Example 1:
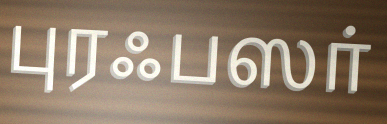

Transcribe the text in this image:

புரஃபஸர்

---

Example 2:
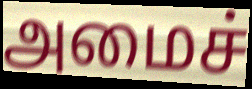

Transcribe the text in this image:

அமைச்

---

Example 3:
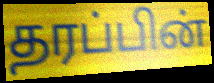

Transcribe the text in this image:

தரப்பின்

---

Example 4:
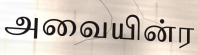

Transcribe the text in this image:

அவையின்ர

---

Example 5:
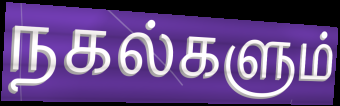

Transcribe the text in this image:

நகல்களும்